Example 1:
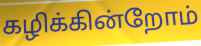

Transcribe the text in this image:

கழிக்கின்றோம்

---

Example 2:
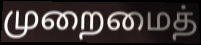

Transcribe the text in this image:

முறைமைத்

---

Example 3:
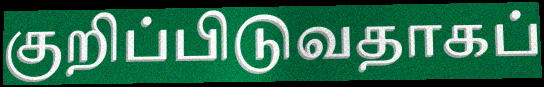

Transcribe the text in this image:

குறிப்பிடுவதாகப்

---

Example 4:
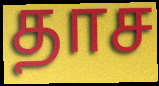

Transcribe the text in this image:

தாச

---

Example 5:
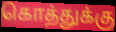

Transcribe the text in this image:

கொத்துக்கு